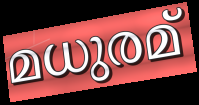
മധുരമ്